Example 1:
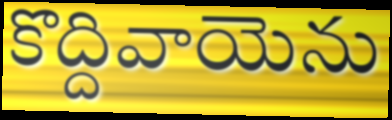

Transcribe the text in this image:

కొద్దివాయెను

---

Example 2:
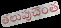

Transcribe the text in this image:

తలుపుచెంత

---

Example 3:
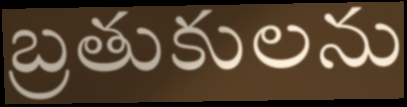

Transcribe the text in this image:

బ్రతుకులను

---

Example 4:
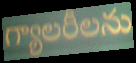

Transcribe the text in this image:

గ్యాలరీలను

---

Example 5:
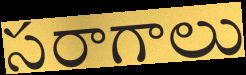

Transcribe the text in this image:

సరాగాలు